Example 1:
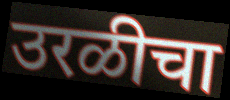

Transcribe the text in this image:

उरळीचा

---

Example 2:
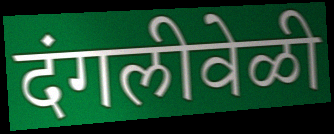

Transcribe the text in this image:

दंगलीवेळी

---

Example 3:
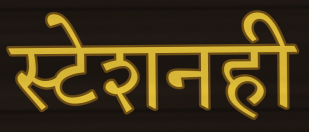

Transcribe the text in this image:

स्टेशनही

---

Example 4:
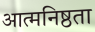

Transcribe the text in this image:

आत्मनिष्ठता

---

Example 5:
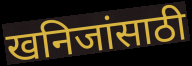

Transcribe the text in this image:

खनिजांसाठी